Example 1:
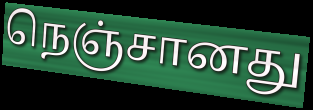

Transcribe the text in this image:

நெஞ்சானது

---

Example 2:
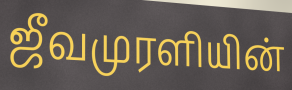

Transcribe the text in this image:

ஜீவமுரளியின்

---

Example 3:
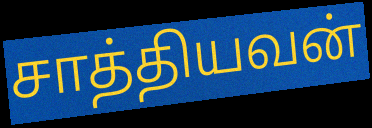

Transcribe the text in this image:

சாத்தியவன்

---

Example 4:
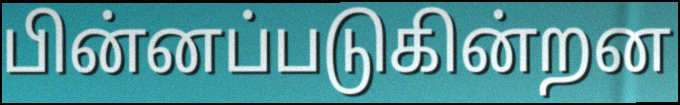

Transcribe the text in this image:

பின்னப்படுகின்றன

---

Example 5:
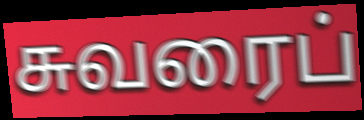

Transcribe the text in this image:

சுவரைப்